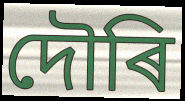
দৌৰি